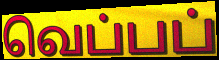
வெப்பப்